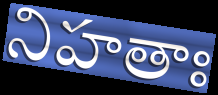
నిహతాః